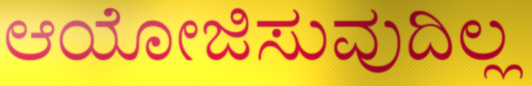
ಆಯೋಜಿಸುವುದಿಲ್ಲ